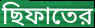
ছিফাতের